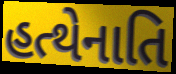
હત્થેનાતિ